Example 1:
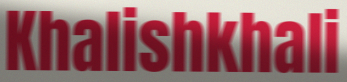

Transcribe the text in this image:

Khalishkhali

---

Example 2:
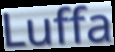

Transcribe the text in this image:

Luffa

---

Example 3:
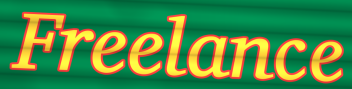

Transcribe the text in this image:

Freelance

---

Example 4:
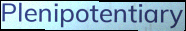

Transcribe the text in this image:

Plenipotentiary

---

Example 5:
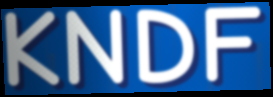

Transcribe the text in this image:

KNDF